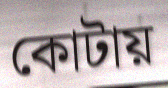
কোটায়